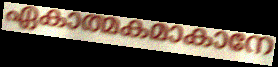
ഏകാത്മകമാകാനേ